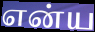
என்ய